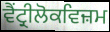
ਵੈਂਟ੍ਰੀਲੋਕਵਿਜ਼ਮ